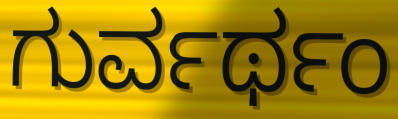
ಗುರ್ವರ್ಥಂ